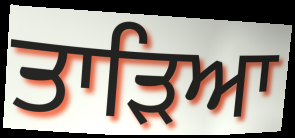
ਤਾੜਿਆ